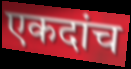
एकदांच